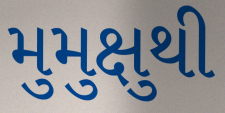
મુમુક્ષુથી